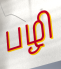
பழி